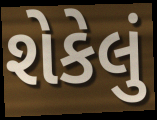
શેકેલું